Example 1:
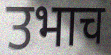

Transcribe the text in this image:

उभाच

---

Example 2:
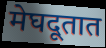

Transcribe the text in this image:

मेघदूतात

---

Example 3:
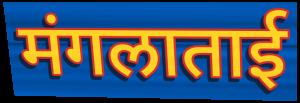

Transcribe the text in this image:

मंगलाताई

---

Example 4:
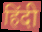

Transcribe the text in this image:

हिंदी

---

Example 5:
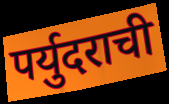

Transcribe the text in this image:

पर्युदराची